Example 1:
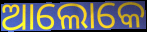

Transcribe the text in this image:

ଆଲୋକେ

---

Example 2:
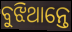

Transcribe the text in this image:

ବୁଝିଥାନ୍ତେ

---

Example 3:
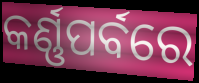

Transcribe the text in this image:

କର୍ଣ୍ଣପର୍ବରେ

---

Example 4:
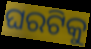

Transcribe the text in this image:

ଘରଟିକୁ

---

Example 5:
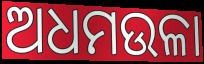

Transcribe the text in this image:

ଅଧମଉଳା